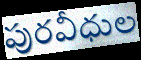
పురవీధుల